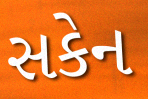
સકેન